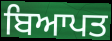
ਬਿਆਪਤ